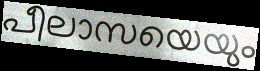
പീലാസയെയും